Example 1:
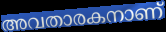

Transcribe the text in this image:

അവതാരകനാണ്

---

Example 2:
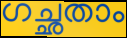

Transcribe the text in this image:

ഗച്ഛതാം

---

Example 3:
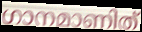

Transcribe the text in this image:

ഗാനമാണിത്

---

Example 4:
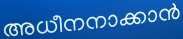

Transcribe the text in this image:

അധീനനാക്കാൻ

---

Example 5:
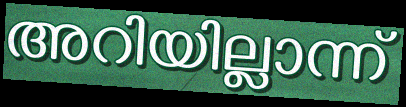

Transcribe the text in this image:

അറിയില്ലാന്ന്